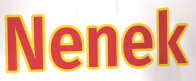
Nenek